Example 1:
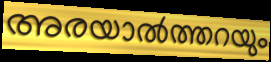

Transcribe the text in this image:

അരയാൽത്തറയും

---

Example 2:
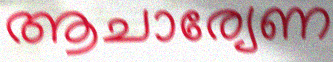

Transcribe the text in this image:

ആചാര്യേണ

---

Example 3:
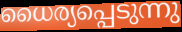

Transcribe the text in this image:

ധൈര്യപ്പെടുന്നു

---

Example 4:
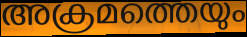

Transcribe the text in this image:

അക്രമത്തെയും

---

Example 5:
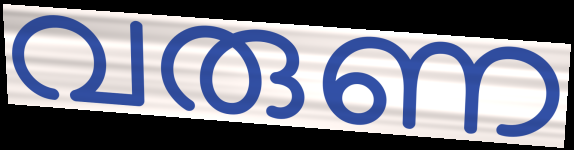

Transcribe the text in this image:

വരുണ